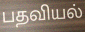
பதவியல்